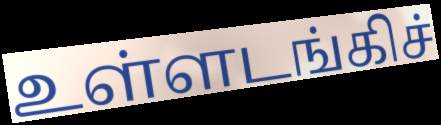
உள்ளடங்கிச்